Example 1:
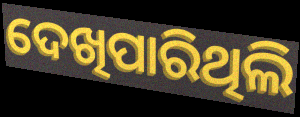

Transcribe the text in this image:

ଦେଖିପାରିଥିଲି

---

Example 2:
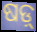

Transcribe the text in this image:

ଷଡ଼୍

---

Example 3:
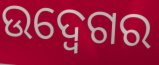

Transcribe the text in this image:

ଉଦ୍ବେଗର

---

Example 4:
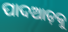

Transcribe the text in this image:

ପାଦଆଡ଼କୁ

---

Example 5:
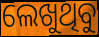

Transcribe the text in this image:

ଲେଖୁଥିବୁ